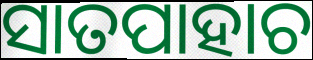
ସାତପାହାଚ